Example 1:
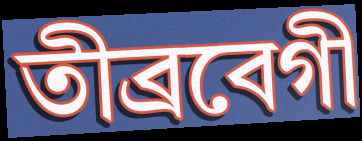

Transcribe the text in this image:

তীব্ৰবেগী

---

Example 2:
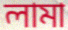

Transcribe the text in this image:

লামা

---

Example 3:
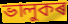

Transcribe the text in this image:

ভালুকৰ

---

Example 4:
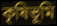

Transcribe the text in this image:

কৃষিভূমি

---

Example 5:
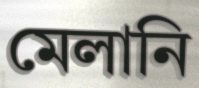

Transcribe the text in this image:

মেলানি